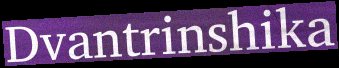
Dvantrinshika